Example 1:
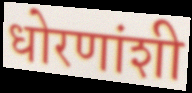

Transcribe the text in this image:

धोरणांशी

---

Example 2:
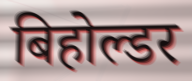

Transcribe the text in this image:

बिहोल्डर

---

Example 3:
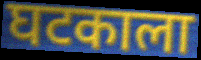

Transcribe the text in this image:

घटकाला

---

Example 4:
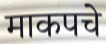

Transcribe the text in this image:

माकपचे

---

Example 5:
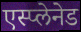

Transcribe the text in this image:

एस्प्लेनेड